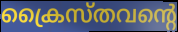
ക്രൈസ്തവന്റെ